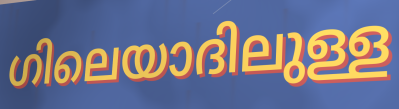
ഗിലെയാദിലുള്ള